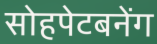
सोहपेटबनेंग